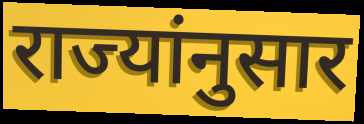
राज्यांनुसार